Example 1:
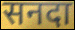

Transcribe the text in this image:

सनदा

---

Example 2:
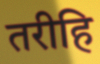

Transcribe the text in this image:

तरीहि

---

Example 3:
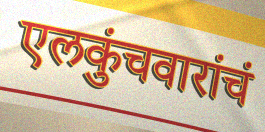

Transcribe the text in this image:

एलकुंचवारांचं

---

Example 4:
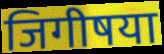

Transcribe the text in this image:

जिगीषया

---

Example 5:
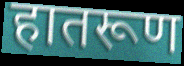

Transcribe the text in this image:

हातरूण